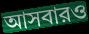
আসবারও